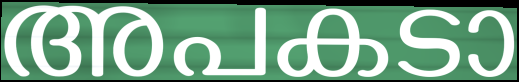
അപകടാ